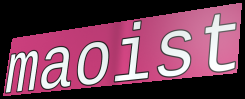
maoist